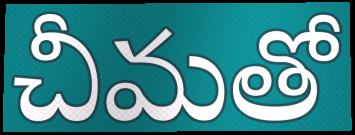
చీమతో